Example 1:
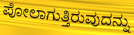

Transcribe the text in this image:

ಪೋಲಾಗುತ್ತಿರುವುದನ್ನು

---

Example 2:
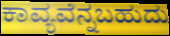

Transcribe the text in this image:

ಕಾವ್ಯವೆನ್ನಬಹುದು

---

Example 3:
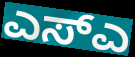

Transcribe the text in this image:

ಎಸ್ಎ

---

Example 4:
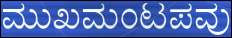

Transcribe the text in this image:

ಮುಖಮಂಟಪವು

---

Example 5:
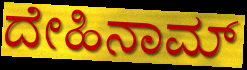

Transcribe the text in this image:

ದೇಹಿನಾಮ್